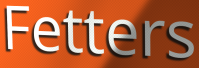
Fetters